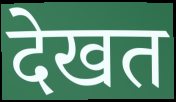
देखत